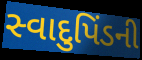
સ્વાદુપિંડની